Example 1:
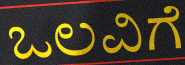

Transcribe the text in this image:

ಒಲವಿಗೆ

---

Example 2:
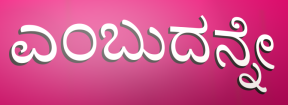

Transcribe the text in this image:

ಎಂಬುದನ್ನೇ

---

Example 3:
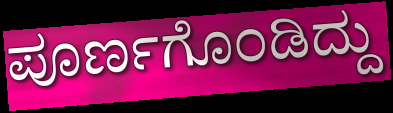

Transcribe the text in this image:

ಪೂರ್ಣಗೊಂಡಿದ್ದು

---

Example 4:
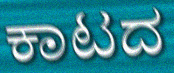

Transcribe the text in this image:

ಕಾಟದ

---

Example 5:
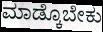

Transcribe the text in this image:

ಮಾಡ್ಕೊಬೇಕು